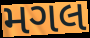
મગલ